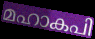
മഹാകപി